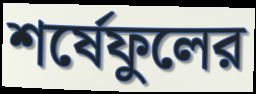
শর্ষেফুলের